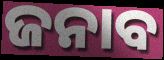
ଜନାବ